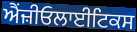
ਐਂਜ਼ੀਓਲਾਈਟਿਕਸ